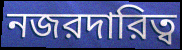
নজরদারিত্ব